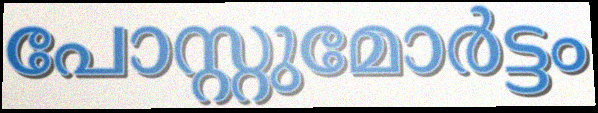
പോസ്റ്റുമോർട്ടം